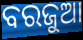
ବରଜୁଆ